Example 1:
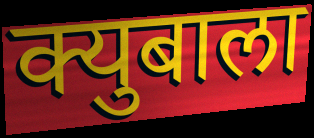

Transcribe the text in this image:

क्युबाला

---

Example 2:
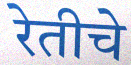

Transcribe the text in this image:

रेतीचे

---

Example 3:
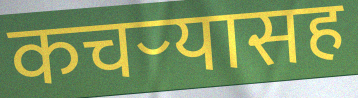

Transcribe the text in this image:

कचऱ्यासह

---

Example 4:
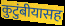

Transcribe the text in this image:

कुटुंबीयासह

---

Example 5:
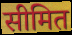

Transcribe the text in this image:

सीमित